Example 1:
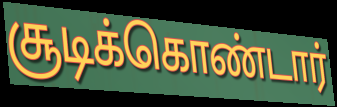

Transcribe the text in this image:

சூடிக்கொண்டார்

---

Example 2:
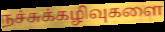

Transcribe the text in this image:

நச்சுக்கழிவுகளை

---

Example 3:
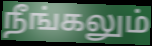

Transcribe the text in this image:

நீங்கலும்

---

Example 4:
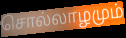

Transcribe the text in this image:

சொல்லாழமும்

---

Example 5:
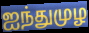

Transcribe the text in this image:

ஐந்துமுழ